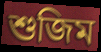
শুজিম